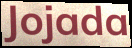
Jojada